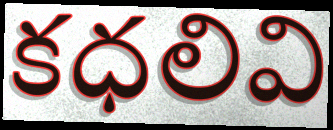
కధలివి